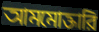
আমমোক্তারি